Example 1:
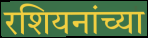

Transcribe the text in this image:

रशियनांच्या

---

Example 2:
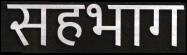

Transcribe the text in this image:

सहभाग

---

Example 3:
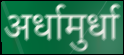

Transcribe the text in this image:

अर्धामुर्धा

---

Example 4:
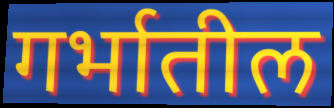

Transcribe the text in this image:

गर्भातील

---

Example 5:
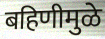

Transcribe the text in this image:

बहिणीमुळे